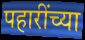
पहारींच्या